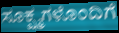
ಸೂಕ್ಷ್ಮಗಳೊಂದಿಗೆ